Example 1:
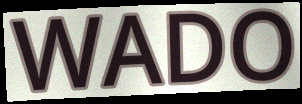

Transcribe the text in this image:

WADO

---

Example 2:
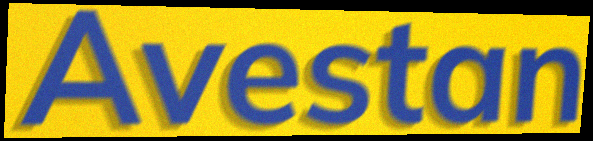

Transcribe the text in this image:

Avestan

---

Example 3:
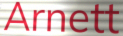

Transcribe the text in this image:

Arnett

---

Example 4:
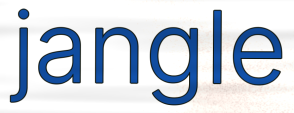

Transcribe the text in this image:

jangle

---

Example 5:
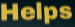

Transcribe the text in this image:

Helps